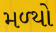
મળ્‍યો